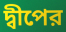
দ্বীপের